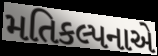
મતિકલ્પનાએ